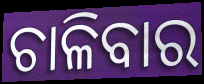
ଚାଳିବାର